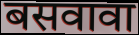
बसवावा